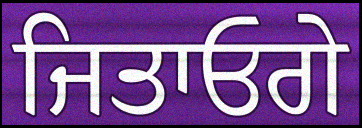
ਜਿਤਾਓਗੇ